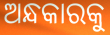
ଅନ୍ଧକାରକୁ